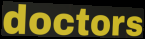
doctors